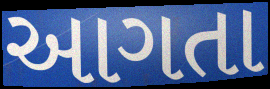
આગતા